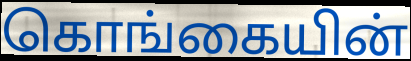
கொங்கையின்